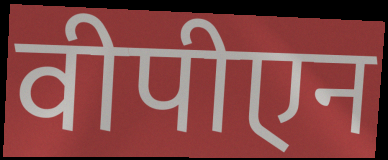
वीपीएन